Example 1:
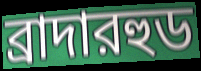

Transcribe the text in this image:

ব্রাদারহুড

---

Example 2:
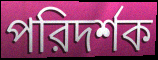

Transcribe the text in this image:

পরিদর্শক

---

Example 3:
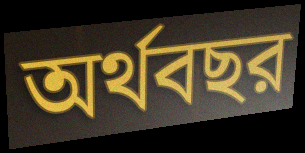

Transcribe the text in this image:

অর্থবছর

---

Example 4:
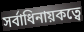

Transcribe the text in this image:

সর্বাধিনায়কত্বে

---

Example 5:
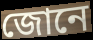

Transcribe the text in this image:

জোনে